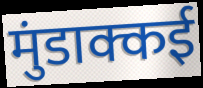
मुंडाक्कई